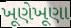
ખૂણેખૂણા